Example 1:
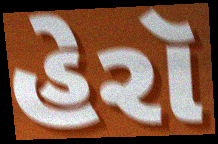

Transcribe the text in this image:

હેરૉ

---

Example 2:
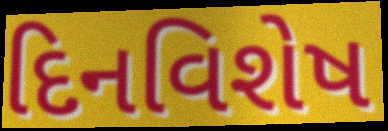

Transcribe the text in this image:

દિનવિશેષ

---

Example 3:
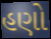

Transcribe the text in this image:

હણો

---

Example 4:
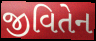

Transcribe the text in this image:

જીવિતેન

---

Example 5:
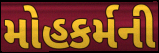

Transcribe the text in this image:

મોહકર્મની